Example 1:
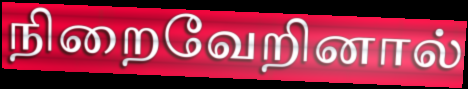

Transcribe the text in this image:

நிறைவேறினால்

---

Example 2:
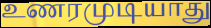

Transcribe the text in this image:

உணரமுடியாது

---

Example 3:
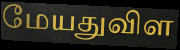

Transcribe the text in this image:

மேயதுவிள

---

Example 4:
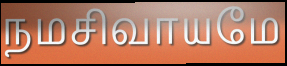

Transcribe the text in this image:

நமசிவாயமே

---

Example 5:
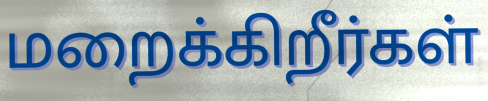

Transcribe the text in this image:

மறைக்கிறீர்கள்